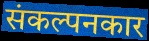
संकल्पनकार